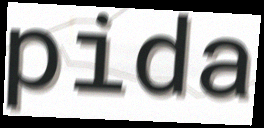
pida